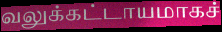
வலுக்கட்டாயமாகச்